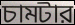
চামটার